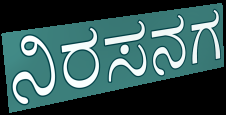
ನಿರಸನಗ